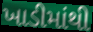
ખાડીમાંથી